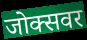
जोक्सवर